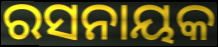
ରସନାୟକ